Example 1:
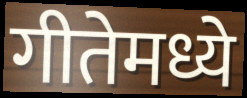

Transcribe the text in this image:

गीतेमध्ये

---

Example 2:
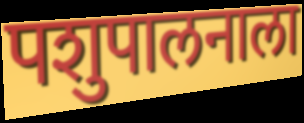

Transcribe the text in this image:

पशुपालनाला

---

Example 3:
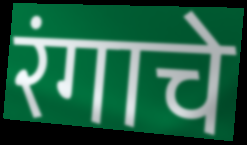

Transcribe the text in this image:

रंगाचे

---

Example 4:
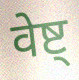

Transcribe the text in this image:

वेष्ट्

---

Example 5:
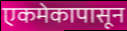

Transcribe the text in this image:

एकमेकापासून